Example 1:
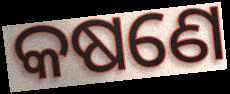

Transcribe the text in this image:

କଷଣେ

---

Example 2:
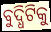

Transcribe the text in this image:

ବୁଦ୍ଧିଟିକୁ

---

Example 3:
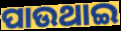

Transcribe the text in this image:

ପାଉଥାଇ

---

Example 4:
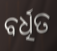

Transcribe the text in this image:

ବର୍ଧିତ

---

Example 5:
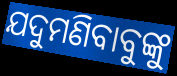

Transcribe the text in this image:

ଯଦୁମଣିବାବୁଙ୍କୁ